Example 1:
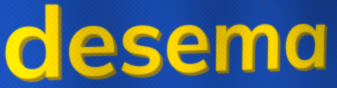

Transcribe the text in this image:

desema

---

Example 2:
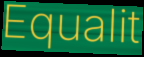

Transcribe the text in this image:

Equalit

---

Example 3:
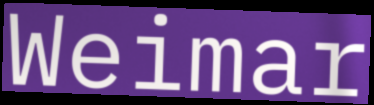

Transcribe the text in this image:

Weimar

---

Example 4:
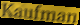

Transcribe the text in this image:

Kaufman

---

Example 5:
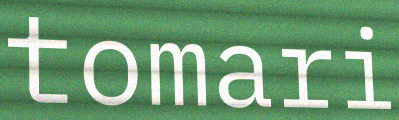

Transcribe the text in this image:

tomari